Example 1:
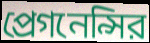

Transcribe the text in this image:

প্রেগনেন্সির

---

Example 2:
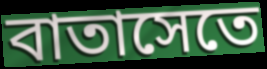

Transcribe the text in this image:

বাতাসেতে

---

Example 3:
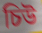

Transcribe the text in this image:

চিউ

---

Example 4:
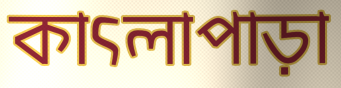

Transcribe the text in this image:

কাৎলাপাড়া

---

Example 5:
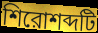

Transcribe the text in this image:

শিরোশব্দটি